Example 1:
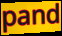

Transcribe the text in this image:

pand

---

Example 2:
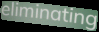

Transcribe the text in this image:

eliminating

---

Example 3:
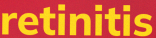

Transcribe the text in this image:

retinitis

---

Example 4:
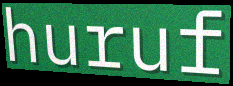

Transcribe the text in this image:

huruf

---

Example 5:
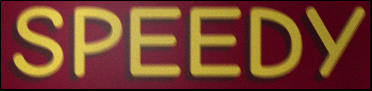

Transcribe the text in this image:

SPEEDY